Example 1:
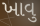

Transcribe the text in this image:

ખાવુ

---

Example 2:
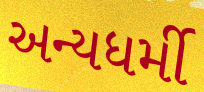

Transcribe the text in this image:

અન્યધર્મી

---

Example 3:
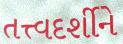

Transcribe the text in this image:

તત્ત્વદર્શીને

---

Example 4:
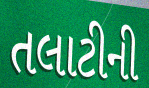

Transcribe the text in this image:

તલાટીની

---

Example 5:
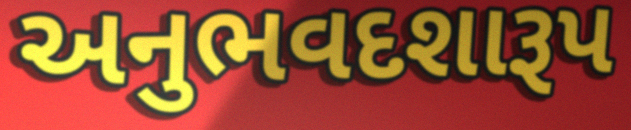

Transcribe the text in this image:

અનુભવદશારૂપ